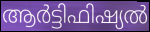
ആർട്ടിഫിഷ്യൽ